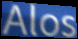
Alos